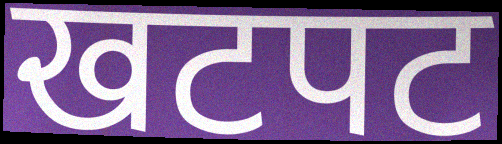
खटपट